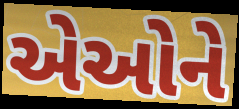
એઓને